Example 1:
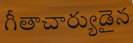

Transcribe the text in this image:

గీతాచార్యుడైన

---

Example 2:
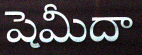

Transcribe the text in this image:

షెమీదా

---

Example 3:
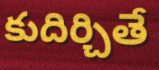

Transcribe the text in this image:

కుదిర్చితే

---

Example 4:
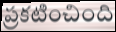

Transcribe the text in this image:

ప్రకటించింది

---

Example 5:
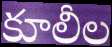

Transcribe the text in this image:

కూలీల